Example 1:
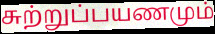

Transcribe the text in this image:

சுற்றுப்பயணமும்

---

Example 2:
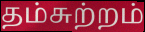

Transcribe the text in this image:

தம்சுற்றம்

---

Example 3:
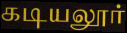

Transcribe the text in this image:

கடியலூர்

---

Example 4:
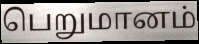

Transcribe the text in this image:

பெறுமானம்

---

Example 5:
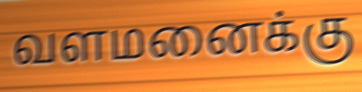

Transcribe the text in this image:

வளமனைக்கு